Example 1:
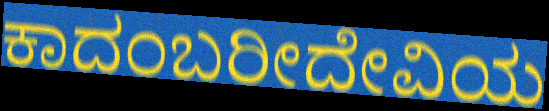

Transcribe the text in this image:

ಕಾದಂಬರೀದೇವಿಯ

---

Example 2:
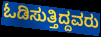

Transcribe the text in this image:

ಓಡಿಸುತ್ತಿದ್ದವರು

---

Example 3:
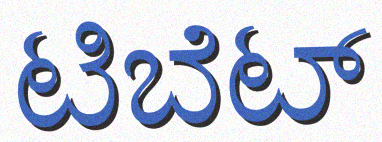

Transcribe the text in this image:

ಟಿಬೆಟ್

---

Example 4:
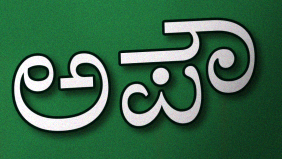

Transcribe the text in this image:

ಅಪೌ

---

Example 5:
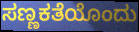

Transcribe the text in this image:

ಸಣ್ಣಕತೆಯೊಂದು